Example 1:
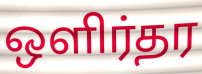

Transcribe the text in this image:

ஒளிர்தர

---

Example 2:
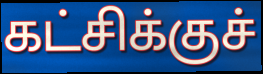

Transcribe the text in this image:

கட்சிக்குச்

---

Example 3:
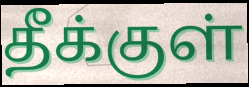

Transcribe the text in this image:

தீக்குள்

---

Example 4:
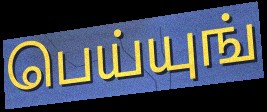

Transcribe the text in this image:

பெய்யுங்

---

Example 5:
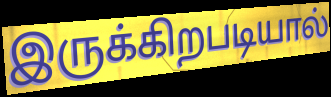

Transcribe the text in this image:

இருக்கிறபடியால்